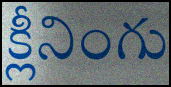
క్లీనింగు